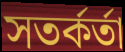
সতর্কর্তা